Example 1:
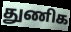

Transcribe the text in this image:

துணிக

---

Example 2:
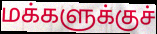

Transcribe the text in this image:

மக்களுக்குச்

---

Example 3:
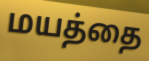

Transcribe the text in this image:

மயத்தை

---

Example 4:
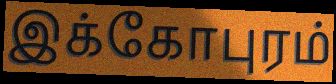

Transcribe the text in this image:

இக்கோபுரம்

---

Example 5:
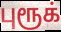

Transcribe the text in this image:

புரூக்